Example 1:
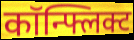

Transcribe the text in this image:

कॉन्फ्लिक्ट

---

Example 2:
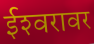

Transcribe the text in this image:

ईश्वरावर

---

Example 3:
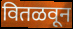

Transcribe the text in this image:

वितळवून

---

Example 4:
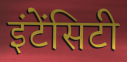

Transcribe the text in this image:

इंटेंसिटी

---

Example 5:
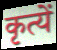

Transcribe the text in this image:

कृत्यें